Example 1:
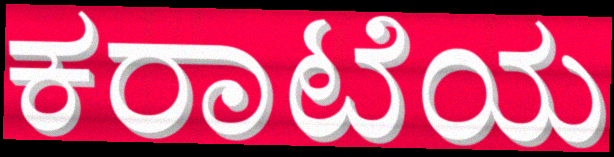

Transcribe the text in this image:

ಕರಾಟೆಯ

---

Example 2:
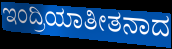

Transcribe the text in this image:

ಇಂದ್ರಿಯಾತೀತನಾದ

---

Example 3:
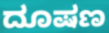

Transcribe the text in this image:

ದೂಷಣ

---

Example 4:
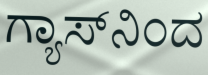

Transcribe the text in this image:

ಗ್ಯಾಸ್‌ನಿಂದ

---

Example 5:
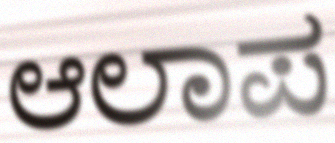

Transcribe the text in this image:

ಆಲಾಪ